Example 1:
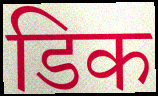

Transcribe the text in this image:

डिक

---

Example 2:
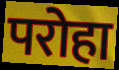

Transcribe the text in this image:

परोहा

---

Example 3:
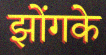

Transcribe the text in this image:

झोंगके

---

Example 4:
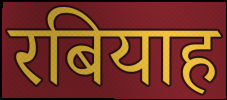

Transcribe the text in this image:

रबियाह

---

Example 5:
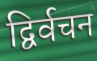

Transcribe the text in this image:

द्विर्वचन